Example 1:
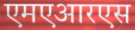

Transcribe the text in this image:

एमएआरएस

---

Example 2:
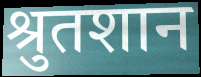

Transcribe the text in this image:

श्रुतशान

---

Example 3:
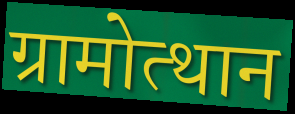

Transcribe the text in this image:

ग्रामोत्थान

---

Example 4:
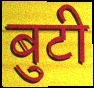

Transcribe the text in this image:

बुटी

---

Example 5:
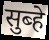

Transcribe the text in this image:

सुब्हे